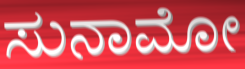
ಸುನಾಮೋ